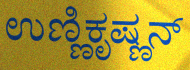
ಉಣ್ಣಿಕೃಷ್ಣನ್